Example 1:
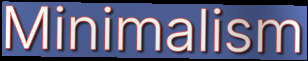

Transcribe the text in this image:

Minimalism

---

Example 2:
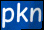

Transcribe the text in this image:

pkn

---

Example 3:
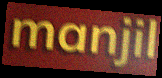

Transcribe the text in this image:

manjil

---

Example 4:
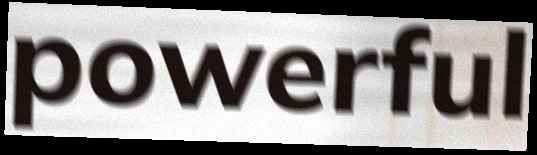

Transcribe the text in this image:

powerful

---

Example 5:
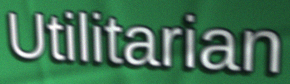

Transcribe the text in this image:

Utilitarian